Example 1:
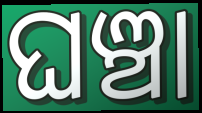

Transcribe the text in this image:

ଘଞ୍ଚା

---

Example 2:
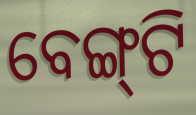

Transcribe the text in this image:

ବେଙ୍ଗ୍‌ଟି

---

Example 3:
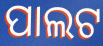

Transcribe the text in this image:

ପାଲଟ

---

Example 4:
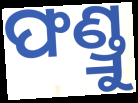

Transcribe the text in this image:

ଫଣ୍ଡ୍ରୁ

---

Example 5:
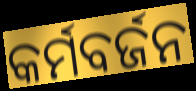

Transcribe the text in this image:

କର୍ମବର୍ଜନ